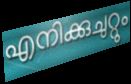
എനിക്കുചുറ്റും